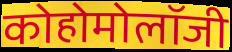
कोहोमोलॉजी